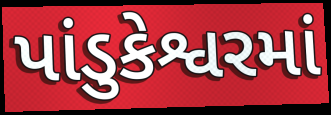
પાંડુકેશ્વરમાં